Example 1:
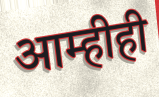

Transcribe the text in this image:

आम्हीही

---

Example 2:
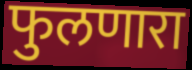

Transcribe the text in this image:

फुलणारा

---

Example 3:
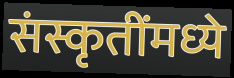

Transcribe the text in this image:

संस्कृतींमध्ये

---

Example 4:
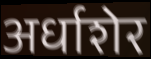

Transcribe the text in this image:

अर्धाशेर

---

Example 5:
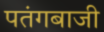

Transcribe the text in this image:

पतंगबाजी